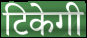
टिकेगी